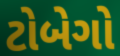
ટોબેગો